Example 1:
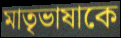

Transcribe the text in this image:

মাতৃভাষাকে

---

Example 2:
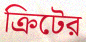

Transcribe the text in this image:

ক্রিটের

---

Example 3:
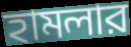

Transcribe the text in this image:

হামলার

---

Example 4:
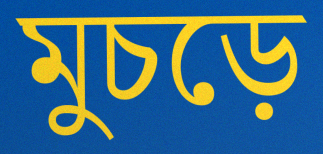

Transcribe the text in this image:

মুচড়ে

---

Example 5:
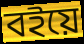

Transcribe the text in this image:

বইয়ে